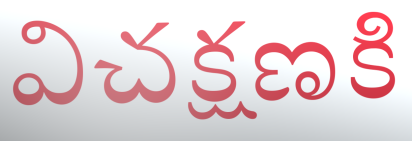
విచక్షణకి